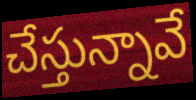
చేస్తున్నావే